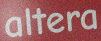
altera